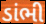
ડાંભી